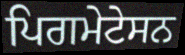
ਪਿਗਮੇਟੇਸਨ